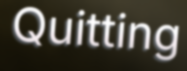
Quitting